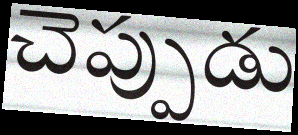
చెప్పుడు